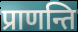
प्राणन्ति